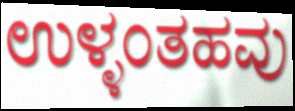
ಉಳ್ಳಂತಹವು